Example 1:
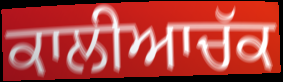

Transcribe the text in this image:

ਕਾਲੀਆਚੱਕ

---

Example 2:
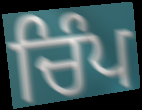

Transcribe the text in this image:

ਚਿੰਪ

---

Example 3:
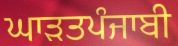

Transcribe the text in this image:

ਘਾੜਤਪੰਜਾਬੀ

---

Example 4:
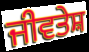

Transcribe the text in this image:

ਜੀਵਤੇਸ਼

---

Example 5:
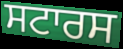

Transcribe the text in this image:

ਸਟਾਰਸ